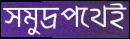
সমুদ্রপথেই